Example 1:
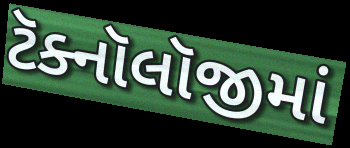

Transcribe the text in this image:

ટૅક્નૉલૉજીમાં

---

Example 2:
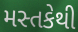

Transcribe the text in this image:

મસ્તકેથી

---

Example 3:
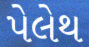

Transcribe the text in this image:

પેલેથ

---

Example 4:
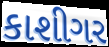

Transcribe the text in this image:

કાશીગર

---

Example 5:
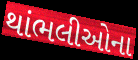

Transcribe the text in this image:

થાંભલીઓના